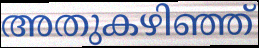
അതുകഴിഞ്ഞ്